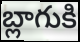
బ్లాగుకి